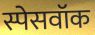
स्पेसवॉक